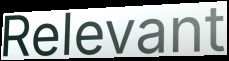
Relevant